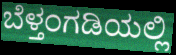
ಬೆಳ್ತಂಗಡಿಯಲ್ಲಿ